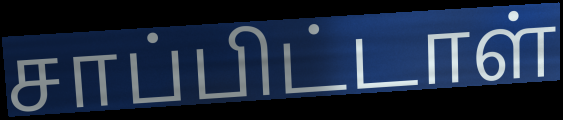
சாப்பிட்டாள்